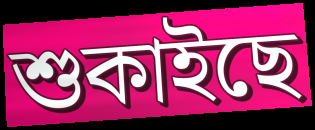
শুকাইছে